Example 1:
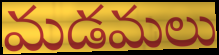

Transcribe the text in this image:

మడమలు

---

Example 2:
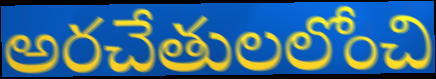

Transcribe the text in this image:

అరచేతులలోంచి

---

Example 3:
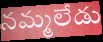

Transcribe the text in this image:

నమ్మలేడు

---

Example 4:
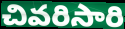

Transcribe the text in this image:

చివరిసారి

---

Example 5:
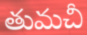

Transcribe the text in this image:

తుమచీ